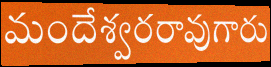
మందేశ్వరరావుగారు